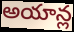
అయాన్ల